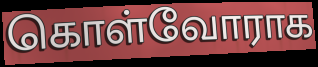
கொள்வோராக